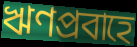
ঋণপ্রবাহে